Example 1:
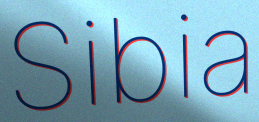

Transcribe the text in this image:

Sibia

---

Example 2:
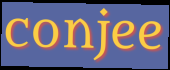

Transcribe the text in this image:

conjee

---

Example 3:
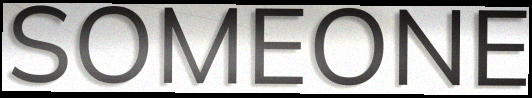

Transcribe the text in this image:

SOMEONE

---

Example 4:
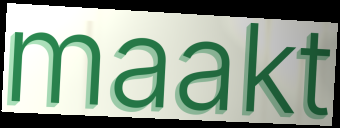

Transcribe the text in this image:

maakt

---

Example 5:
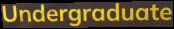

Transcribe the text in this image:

Undergraduate